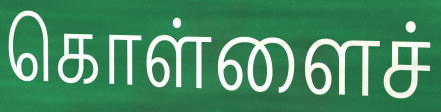
கொள்ளைச்